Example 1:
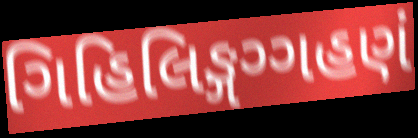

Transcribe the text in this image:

ગિહિલિઙ્ગગ્ગહણં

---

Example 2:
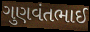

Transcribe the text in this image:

ગુણવંતભાઈ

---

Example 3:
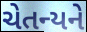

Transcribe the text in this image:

ચેતન્યને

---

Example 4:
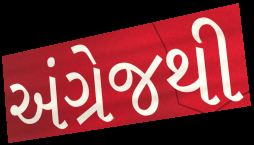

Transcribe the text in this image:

અંગ્રેજથી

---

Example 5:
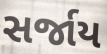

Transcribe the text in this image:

સર્જાય